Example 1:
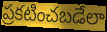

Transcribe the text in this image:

ప్రకటించబడేలా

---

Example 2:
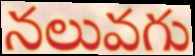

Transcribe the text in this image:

నలువగు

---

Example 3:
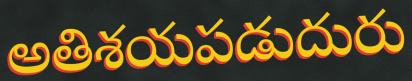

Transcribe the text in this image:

అతిశయపడుదురు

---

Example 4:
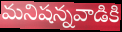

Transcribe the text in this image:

మనిషన్నవాడికి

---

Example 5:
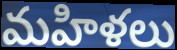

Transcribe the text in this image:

మహిళలు